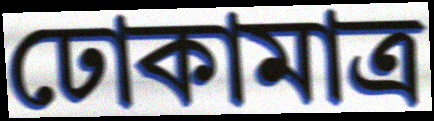
ঢোকামাত্র